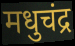
मधुचंद्र